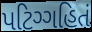
પટિગ્ગહિતં